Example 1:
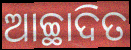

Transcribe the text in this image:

ଆଚ୍ଛାଦିତ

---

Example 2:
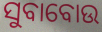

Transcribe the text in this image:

ସୁବାବୋଉ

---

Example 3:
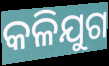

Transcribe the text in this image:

କଳିଯୁଗ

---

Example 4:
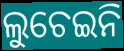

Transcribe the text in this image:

ଲୁଚେଇନି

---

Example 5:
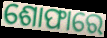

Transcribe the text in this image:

ଶୋଫାରେ